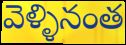
వెళ్ళినంత